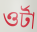
ওর্টা